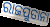
ରାଜପୁତାନା